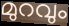
മുറവും